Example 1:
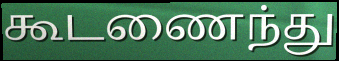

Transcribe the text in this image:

கூடணைந்து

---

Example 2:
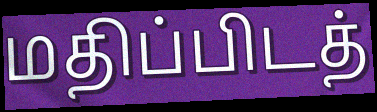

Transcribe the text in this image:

மதிப்பிடத்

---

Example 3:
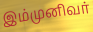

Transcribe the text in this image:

இம்முனிவர்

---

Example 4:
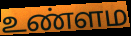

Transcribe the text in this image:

உண்ளம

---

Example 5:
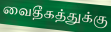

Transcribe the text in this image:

வைதீகத்துக்கு